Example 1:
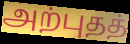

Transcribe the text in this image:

அற்புதத்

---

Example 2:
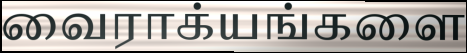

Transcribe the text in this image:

வைராக்யங்களை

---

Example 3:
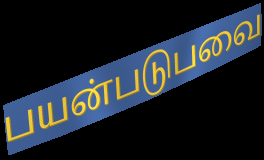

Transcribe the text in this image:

பயன்படுபவை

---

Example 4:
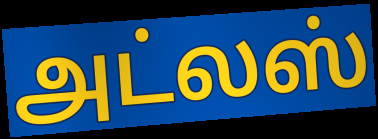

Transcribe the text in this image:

அட்லஸ்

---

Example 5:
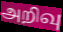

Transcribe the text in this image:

அறிவு